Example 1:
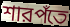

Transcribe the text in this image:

শারপঁতে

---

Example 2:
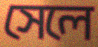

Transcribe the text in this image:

সেলে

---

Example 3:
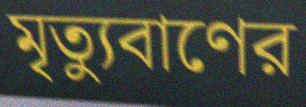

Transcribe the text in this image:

মৃত্যুবাণের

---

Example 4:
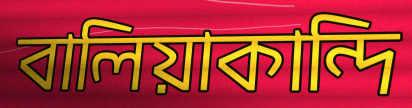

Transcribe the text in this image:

বালিয়াকান্দি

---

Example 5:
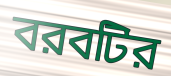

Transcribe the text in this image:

বরবটির